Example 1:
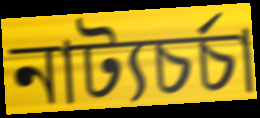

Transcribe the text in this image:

নাট্যচর্চা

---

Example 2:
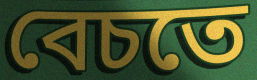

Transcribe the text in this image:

বেচতে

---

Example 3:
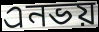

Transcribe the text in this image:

এনভয়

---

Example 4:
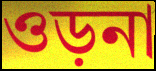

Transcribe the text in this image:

ওড়না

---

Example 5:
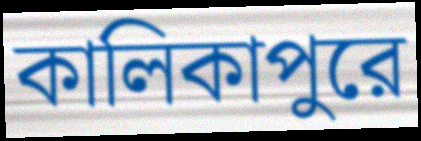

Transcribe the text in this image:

কালিকাপুরে